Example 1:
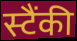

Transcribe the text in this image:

स्टैंकी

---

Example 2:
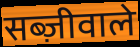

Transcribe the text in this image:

सब्ज़ीवाले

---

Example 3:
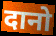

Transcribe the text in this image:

दानो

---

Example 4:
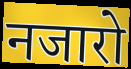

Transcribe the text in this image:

नजारो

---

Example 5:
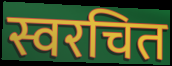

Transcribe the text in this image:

स्वरचित